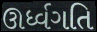
ઊર્ધ્વગતિ